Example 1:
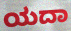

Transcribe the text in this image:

ಯದಾ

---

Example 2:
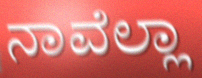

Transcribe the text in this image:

ನಾವೆಲ್ಲಾ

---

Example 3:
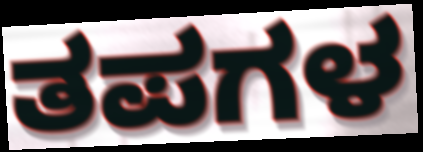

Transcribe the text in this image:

ತಪಗಳ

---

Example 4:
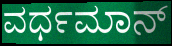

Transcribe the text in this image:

ವರ್ಧಮಾನ್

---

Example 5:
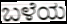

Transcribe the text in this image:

ಬಳೆಯ